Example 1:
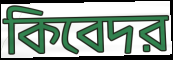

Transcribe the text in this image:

কিবেদর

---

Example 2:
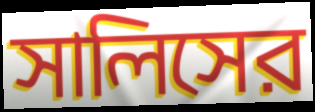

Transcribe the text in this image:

সালিসের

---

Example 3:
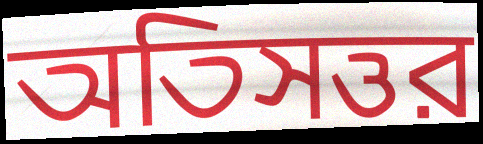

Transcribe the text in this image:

অতিসত্তর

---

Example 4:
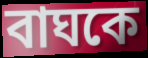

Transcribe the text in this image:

বাঘকে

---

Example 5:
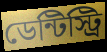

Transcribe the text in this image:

ডেন্টিস্ট্রি